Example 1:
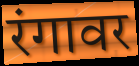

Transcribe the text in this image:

रंगावर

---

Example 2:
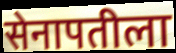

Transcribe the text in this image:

सेनापतीला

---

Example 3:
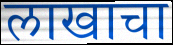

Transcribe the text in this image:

लाखाचा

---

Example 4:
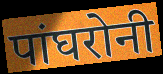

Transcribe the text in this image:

पांघरोनी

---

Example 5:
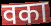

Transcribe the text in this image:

वका